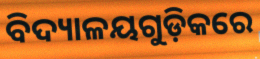
ବିଦ୍ୟାଳୟଗୁଡ଼ିକରେ